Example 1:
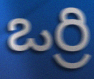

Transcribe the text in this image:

ఒర్రి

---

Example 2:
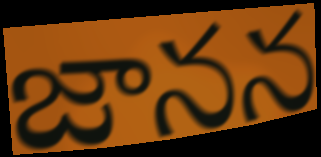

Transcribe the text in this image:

జానన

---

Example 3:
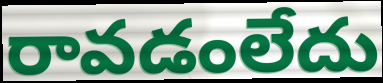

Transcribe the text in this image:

రావడంలేదు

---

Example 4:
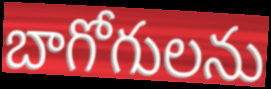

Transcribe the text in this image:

బాగోగులను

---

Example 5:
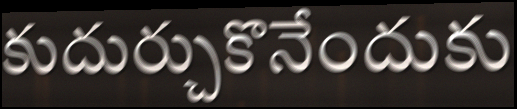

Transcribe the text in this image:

కుదుర్చుకొనేందుకు